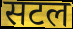
सटल